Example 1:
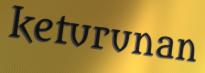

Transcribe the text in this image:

keturunan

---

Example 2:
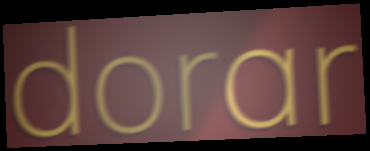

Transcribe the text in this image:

dorar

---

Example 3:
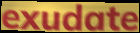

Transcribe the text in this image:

exudate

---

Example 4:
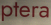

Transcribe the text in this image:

ptera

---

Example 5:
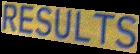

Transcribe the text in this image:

RESULTS